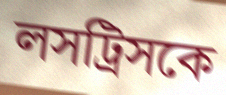
লসট্রিসকে